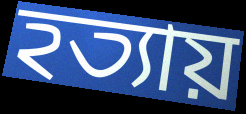
হত্যায়